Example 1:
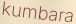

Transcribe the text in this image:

kumbara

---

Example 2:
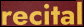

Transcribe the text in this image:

recital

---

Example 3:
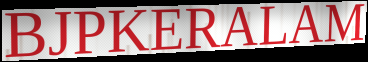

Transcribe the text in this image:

BJPKERALAM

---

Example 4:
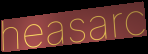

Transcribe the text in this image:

heasarc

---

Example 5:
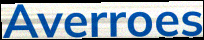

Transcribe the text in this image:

Averroes